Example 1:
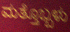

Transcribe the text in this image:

ಮತ್ತೊಬ್ಬಳು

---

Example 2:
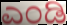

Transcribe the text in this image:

ಎಂಡಿ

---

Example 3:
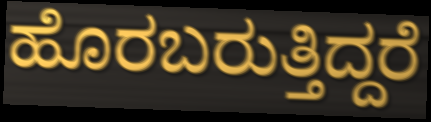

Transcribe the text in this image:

ಹೊರಬರುತ್ತಿದ್ದರೆ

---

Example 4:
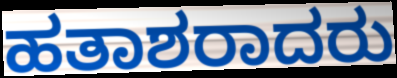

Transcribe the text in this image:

ಹತಾಶರಾದರು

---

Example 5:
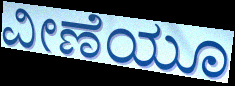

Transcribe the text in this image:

ವೀಣೆಯೂ